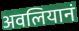
अवलियानं